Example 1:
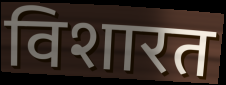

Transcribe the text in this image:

विशारत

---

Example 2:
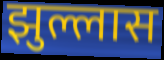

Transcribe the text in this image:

झुल्लास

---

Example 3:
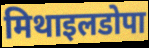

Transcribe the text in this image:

मिथाइलडोपा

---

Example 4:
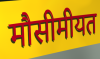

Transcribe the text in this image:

मौसीमीयत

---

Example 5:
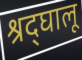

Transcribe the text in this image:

श्रद्घालू